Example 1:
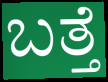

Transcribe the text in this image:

ಬತ್ತೆ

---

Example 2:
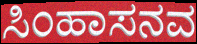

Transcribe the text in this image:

ಸಿಂಹಾಸನವ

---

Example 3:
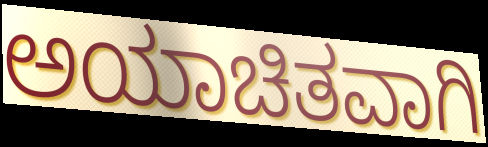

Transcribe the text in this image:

ಅಯಾಚಿತವಾಗಿ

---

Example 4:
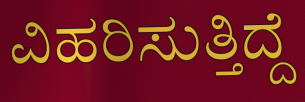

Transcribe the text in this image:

ವಿಹರಿಸುತ್ತಿದ್ದೆ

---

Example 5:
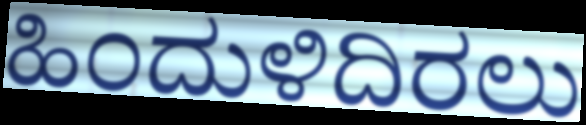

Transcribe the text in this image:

ಹಿಂದುಳಿದಿರಲು